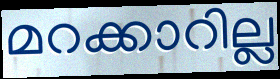
മറക്കാറില്ല